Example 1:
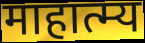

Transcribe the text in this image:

माहात्म्य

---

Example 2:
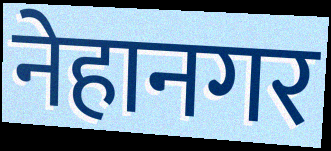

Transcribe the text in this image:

नेहानगर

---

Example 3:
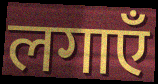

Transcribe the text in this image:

लगाएँ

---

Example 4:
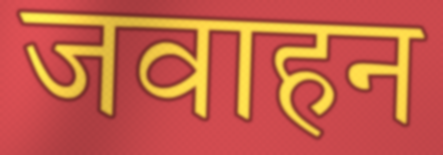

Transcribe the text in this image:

जवाहन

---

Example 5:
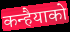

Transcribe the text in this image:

कन्हैयाको